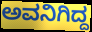
ಅವನಿಗಿದ್ದ